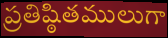
ప్రతిష్ఠితములుగా